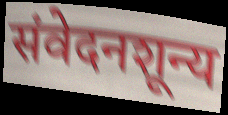
संवेदनशून्य